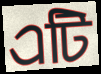
এটি